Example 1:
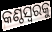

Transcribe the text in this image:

କଣ୍ଠସ୍ୱରକୁ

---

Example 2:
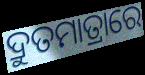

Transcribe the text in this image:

ଦ୍ରୁତମାତ୍ରାରେ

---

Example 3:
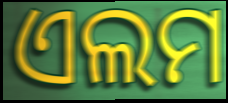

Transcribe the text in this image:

ଏଲମ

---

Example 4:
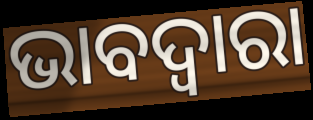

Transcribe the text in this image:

ଭାବଦ୍ଵାରା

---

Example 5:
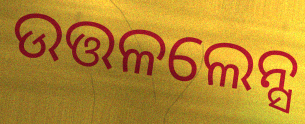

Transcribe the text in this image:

ଉତ୍ତଳଲେନ୍ସ